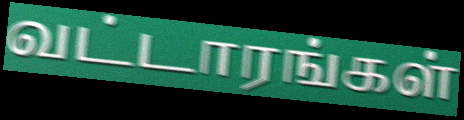
வட்டாரங்கள்